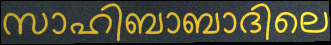
സാഹിബാബാദിലെ